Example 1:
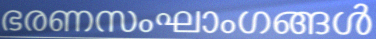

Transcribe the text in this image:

ഭരണസംഘാംഗങ്ങൾ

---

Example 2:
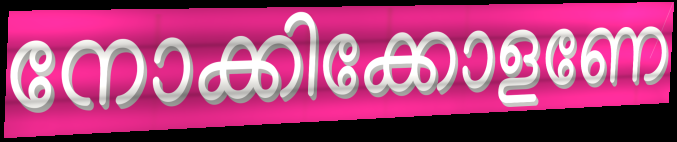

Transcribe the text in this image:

നോക്കിക്കോളണേ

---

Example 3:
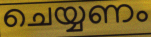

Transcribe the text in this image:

ചെയ്യണം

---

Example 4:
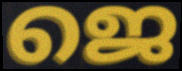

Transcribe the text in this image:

ജെ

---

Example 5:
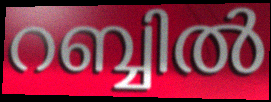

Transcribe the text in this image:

റബ്ബിൽ